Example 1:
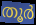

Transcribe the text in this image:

തൂർ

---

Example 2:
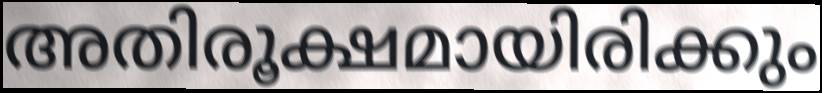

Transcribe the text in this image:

അതിരൂക്ഷമായിരിക്കും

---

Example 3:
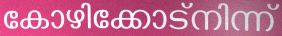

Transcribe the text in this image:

കോഴിക്കോട്നിന്ന്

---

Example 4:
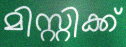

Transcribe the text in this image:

മിസ്റ്റിക്ക്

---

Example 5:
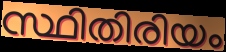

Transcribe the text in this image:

സ്ഥിതിരിയം